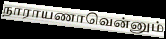
நாராயணாவென்னும்